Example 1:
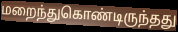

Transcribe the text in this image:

மறைந்துகொண்டிருந்தது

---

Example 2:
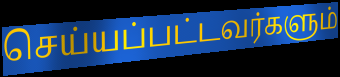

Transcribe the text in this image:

செய்யப்பட்டவர்களும்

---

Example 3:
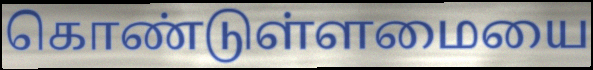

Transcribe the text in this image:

கொண்டுள்ளமையை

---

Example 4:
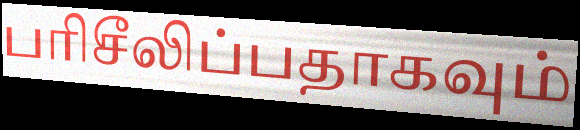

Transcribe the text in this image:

பரிசீலிப்பதாகவும்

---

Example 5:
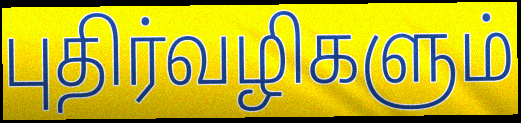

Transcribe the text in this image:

புதிர்வழிகளும்